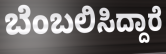
ಬೆಂಬಲಿಸಿದ್ದಾರೆ